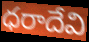
ధరాదేవి